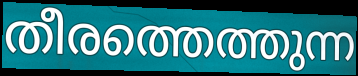
തീരത്തെത്തുന്ന